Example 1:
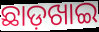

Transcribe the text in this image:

ଛାଡ଼ଖାଇ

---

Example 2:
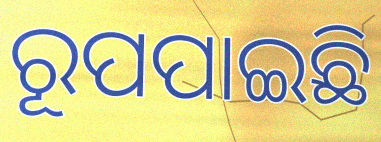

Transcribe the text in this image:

ରୂପପାଇଛି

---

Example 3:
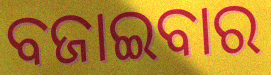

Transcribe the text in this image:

ବଜାଇବାର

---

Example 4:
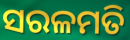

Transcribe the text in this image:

ସରଳମତି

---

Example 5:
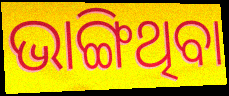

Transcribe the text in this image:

ଭାଙ୍ଗିଥିବା